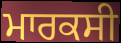
ਮਾਰਕਸੀ